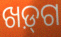
ଖଡ଼୍‌ଗ